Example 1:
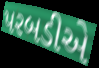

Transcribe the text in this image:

પરબડીએ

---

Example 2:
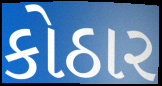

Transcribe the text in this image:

કોઠાર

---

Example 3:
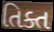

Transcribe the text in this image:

તિક્ત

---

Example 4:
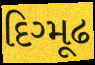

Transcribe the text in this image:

દિગ્મૂઢ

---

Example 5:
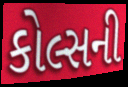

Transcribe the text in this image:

કોલ્સની